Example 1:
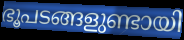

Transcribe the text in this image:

ഭൂപടങ്ങളുണ്ടായി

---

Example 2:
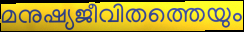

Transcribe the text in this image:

മനുഷ്യജീവിതത്തെയും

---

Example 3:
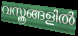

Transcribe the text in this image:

വസ്ത്രങ്ങളിൽ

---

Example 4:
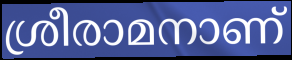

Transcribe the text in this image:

ശ്രീരാമനാണ്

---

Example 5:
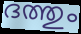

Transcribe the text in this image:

ദത്തും